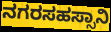
ನಗರಸಹಸ್ಸಾನಿ